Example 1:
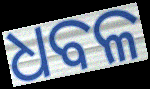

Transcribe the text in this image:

ଧବଳ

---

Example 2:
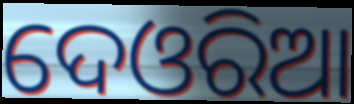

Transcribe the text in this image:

ଦେଓରିଆ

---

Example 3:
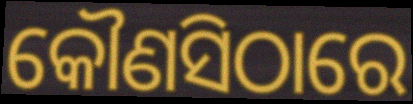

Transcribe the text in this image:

କୌଣସିଠାରେ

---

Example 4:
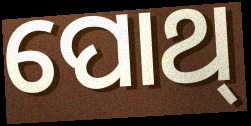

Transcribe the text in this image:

ପୋଥ୍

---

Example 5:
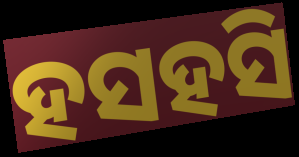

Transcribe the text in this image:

ହସହସି